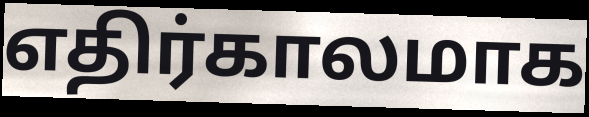
எதிர்காலமாக